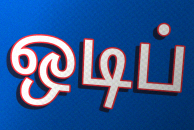
ஒடிப்